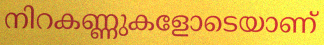
നിറകണ്ണുകളോടെയാണ്